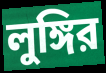
লুঙ্গির